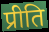
प्रीति